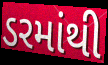
ડરમાંથી